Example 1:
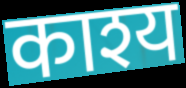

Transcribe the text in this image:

काश्य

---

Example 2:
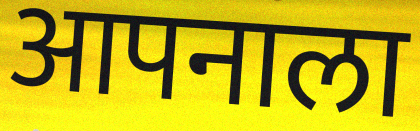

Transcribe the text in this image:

आपनाला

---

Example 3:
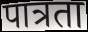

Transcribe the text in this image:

पात्रता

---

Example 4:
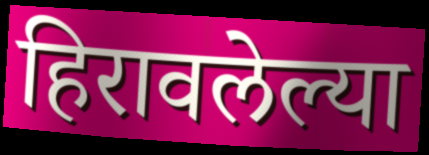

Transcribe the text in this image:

हिरावलेल्या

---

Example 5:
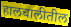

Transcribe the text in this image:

हालचालीतील